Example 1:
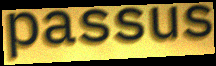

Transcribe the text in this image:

passus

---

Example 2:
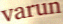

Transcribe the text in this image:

varun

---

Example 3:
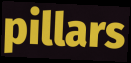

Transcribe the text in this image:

pillars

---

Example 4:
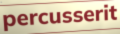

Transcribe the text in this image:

percusserit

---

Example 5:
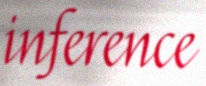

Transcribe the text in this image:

inference